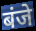
बंजे